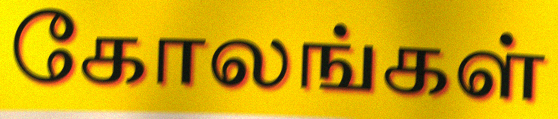
கோலங்கள்